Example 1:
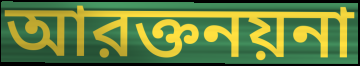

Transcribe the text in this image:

আরক্তনয়না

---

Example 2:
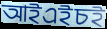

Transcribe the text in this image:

আইএইচই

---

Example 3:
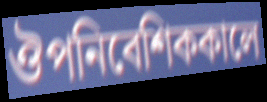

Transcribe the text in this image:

ঔপনিবেশিককালে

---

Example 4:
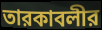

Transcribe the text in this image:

তারকাবলীর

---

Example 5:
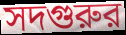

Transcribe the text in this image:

সদগুরুর